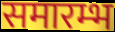
समारम्भ